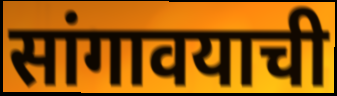
सांगावयाची